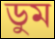
ডুম